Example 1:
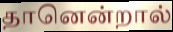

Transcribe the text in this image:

தானென்றால்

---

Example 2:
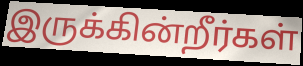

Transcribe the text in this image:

இருக்கின்றீர்கள்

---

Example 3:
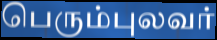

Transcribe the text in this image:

பெரும்புலவர்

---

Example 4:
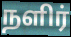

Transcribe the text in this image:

நளிர்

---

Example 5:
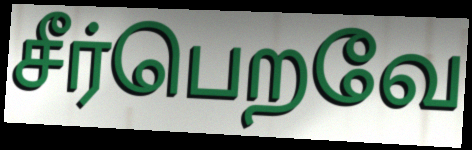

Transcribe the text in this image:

சீர்பெறவே